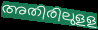
അതിരിലുളള